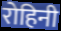
रोहिनी